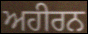
ਅਹੀਰਨ